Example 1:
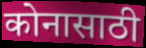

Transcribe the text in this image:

कोनासाठी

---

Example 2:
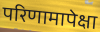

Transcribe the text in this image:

परिणामापेक्षा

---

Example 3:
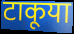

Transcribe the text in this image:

टाकूया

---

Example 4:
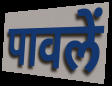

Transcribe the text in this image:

पावलें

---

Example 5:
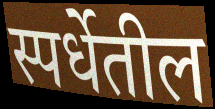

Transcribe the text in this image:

स्पर्धेतील